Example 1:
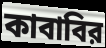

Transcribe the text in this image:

কাবাবির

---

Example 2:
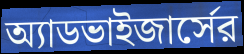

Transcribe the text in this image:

অ্যাডভাইজার্সের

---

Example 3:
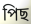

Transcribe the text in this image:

পিছ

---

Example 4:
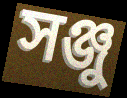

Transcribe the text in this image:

সঞ্জু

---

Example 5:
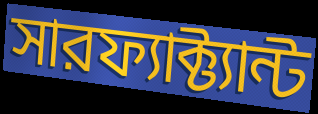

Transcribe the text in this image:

সারফ্যাক্ট্যান্ট